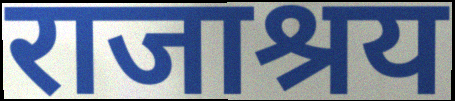
राजाश्रय